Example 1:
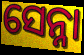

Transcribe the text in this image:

ସେନ୍ନା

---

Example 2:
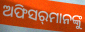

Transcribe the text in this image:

ଅଫିସର୍‌ମାନଙ୍କୁ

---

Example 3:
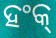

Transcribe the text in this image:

ହଂକ୍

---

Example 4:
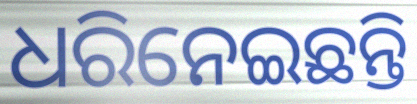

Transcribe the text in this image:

ଧରିନେଇଛନ୍ତି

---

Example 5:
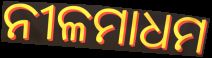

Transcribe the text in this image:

ନୀଳମାଧମ